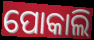
ପୋକାଲି